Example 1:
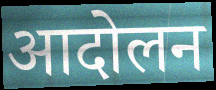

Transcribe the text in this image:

आदोलन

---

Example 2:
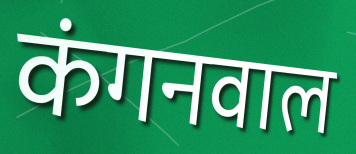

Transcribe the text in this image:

कंगनवाल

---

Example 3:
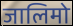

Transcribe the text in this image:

जालिमो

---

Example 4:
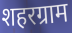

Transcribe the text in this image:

शहरग्राम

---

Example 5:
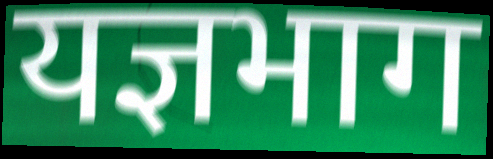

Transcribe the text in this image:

यज्ञभाग